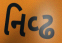
નિવ્ઢ